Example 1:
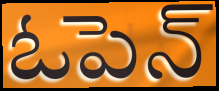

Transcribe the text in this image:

ఓపెన్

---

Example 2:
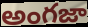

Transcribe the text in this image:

అంగజా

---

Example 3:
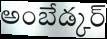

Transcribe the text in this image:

అంబేడ్కర్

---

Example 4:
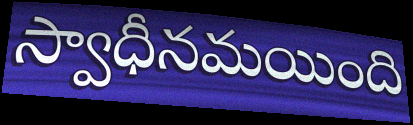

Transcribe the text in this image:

స్వాధీనమయింది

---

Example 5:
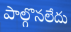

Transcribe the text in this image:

పాల్గొనలేదు